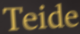
Teide